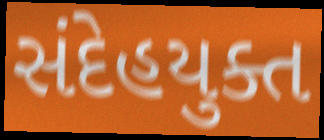
સંદેહયુક્ત